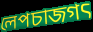
লেপচাজগৎ